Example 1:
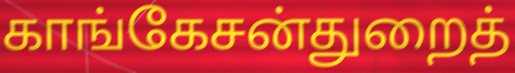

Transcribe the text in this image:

காங்கேசன்துறைத்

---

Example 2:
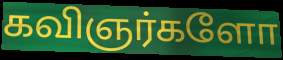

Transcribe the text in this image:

கவிஞர்களோ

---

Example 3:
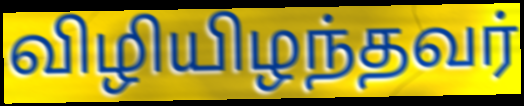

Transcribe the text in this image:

விழியிழந்தவர்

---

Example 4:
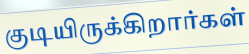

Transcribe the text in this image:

குடியிருக்கிறார்கள்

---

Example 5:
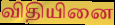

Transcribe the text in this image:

விதியினை